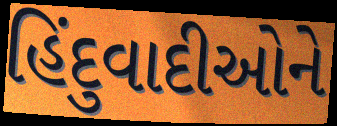
હિંદુવાદીઓને